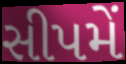
સીપમેં